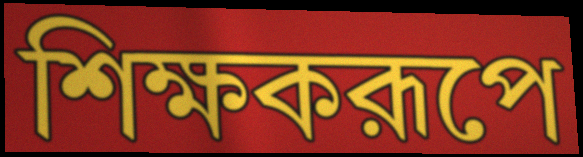
শিক্ষকরূপে